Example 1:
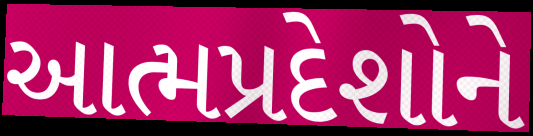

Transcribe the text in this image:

આત્મપ્રદેશોને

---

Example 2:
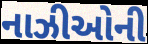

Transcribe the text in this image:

નાઝીઓની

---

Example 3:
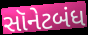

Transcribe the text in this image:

સૉનેટબંધ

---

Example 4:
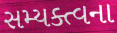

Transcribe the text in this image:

સમ્યક્ત્વના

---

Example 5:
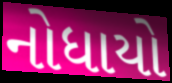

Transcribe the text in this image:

નોધાયો